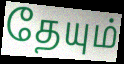
தேயும்